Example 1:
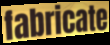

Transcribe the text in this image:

fabricate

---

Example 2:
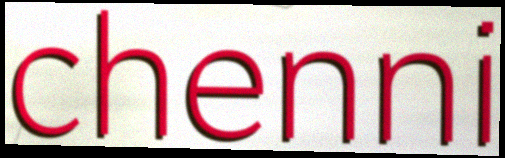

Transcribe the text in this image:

chenni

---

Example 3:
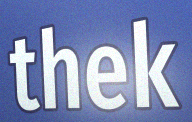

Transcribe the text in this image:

thek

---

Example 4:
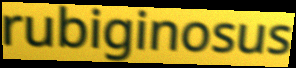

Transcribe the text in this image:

rubiginosus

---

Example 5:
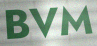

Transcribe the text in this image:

BVM